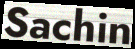
Sachin